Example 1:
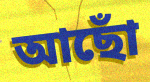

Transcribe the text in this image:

আছোঁ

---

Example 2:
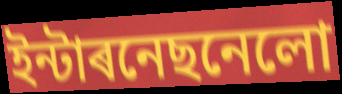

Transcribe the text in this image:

ইন্টাৰনেছনেলো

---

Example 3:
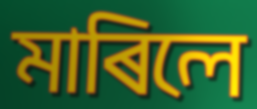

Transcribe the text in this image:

মাৰিলে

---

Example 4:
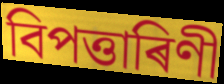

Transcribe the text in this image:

বিপত্তাৰিণী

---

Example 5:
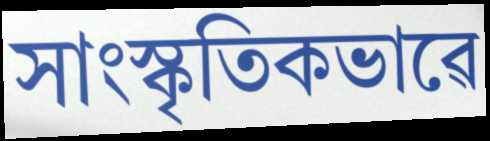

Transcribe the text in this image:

সাংস্কৃতিকভাৱে